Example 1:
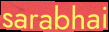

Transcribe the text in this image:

sarabhai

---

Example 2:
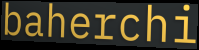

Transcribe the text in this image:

baherchi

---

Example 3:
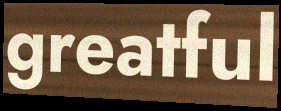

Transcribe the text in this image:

greatful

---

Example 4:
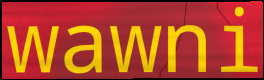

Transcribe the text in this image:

wawni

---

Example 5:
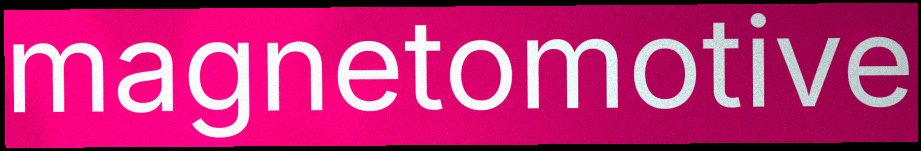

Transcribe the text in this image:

magnetomotive